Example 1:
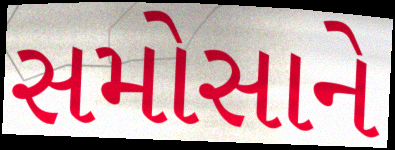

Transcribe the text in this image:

સમોસાને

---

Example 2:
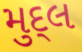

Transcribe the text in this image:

મુદ્લ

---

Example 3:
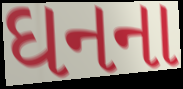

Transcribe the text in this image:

ઘનના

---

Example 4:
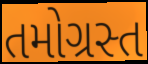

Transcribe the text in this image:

તમોગ્રસ્ત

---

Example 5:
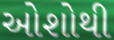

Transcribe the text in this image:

ઓશોથી